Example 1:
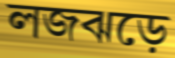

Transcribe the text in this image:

লজঝড়ে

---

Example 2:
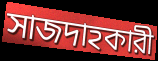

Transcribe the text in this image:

সাজদাহকারী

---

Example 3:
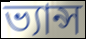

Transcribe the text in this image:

ভ্যান্স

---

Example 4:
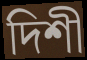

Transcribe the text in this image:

দিশী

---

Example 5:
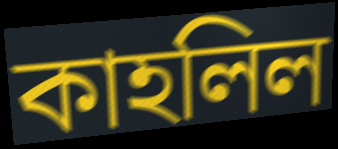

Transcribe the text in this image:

কাহলিল